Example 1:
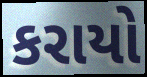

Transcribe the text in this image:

કરાયો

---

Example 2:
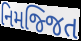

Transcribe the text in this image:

નિમજ્જિત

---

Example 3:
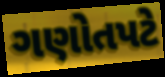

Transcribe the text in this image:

ગણોતપટે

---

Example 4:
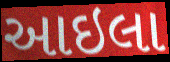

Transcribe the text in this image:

આઇલા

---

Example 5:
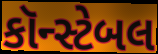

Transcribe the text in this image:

કૉન્સ્ટેબલ